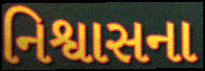
નિશ્વાસના